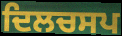
ਦਿਲਚਸਪ